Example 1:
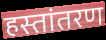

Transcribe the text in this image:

हस्तांतरण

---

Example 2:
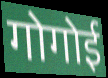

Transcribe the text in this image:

गोगोई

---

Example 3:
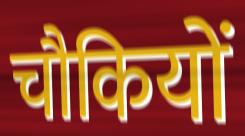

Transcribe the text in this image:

चौकियों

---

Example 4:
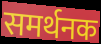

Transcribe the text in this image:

समर्थनक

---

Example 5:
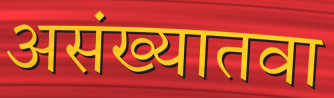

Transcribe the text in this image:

असंख्यातवा